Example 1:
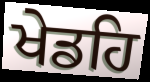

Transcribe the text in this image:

ਖੇਡਹਿ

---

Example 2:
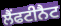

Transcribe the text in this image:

ਲੈਂਫਟੀਨੈਟ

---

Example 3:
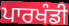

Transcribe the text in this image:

ਪਾਰਖੰਡੀ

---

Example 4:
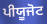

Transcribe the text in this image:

ਪੀਯੂਜੋਟ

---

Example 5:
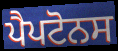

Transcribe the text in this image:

ਪੈਪਟੋਨਸ